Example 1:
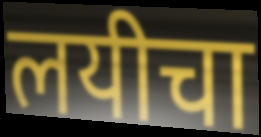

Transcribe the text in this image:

लयीचा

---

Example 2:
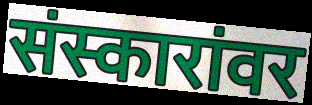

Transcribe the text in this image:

संस्कारांवर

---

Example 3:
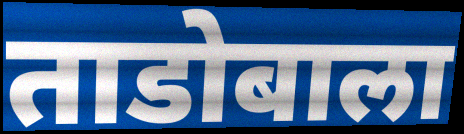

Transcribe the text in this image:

ताडोबाला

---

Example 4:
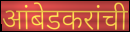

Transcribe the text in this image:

आंबेडकरांची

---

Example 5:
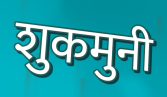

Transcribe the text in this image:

शुकमुनी